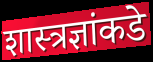
शास्त्रज्ञांकडे